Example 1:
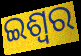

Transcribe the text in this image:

ଇଶ୍ବର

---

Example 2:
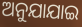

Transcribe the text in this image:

ଅନୁଯାଯାଇ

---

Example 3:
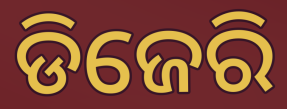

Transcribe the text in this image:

ଡିଜେରି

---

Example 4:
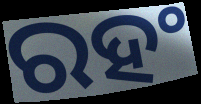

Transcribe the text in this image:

ରହଂ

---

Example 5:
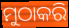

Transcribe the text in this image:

ମୁଠାକରି